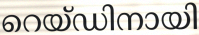
റെയ്ഡിനായി